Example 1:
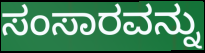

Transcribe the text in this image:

ಸಂಸಾರವನ್ನು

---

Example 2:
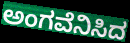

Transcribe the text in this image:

ಅಂಗವೆನಿಸಿದ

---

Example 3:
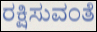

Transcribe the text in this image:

ರಕ್ಷಿಸುವಂತೆ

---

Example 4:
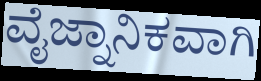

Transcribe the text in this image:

ವೈಜ್ನಾನಿಕವಾಗಿ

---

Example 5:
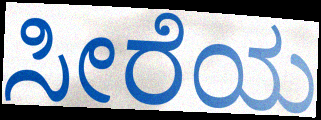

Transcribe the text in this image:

ಸೀರೆಯ